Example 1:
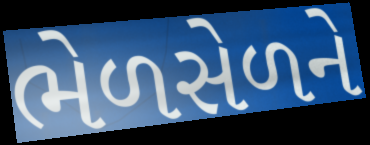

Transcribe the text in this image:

ભેળસેળને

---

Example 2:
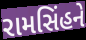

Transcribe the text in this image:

રામસિંહને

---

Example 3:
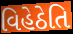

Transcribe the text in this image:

વિહેઠેતિ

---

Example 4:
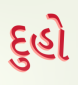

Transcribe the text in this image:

દુહો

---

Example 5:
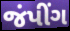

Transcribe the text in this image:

જંપીંગ